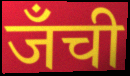
जँची